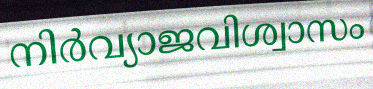
നിർവ്യാജവിശ്വാസം